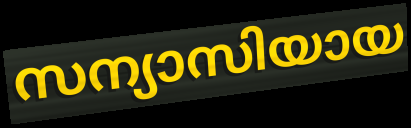
സന്യാസിയായ